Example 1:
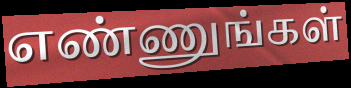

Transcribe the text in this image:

எண்ணுங்கள்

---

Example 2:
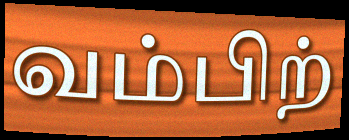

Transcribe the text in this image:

வம்பிற்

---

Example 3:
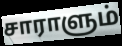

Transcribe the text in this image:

சாராளும்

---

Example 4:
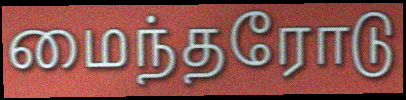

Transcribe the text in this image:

மைந்தரோடு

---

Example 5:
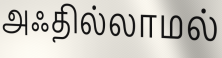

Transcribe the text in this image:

அஃதில்லாமல்